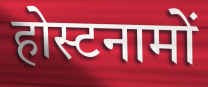
होस्टनामों